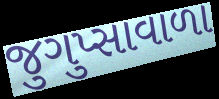
જુગુપ્સાવાળા